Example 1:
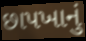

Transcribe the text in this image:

છાપખાનું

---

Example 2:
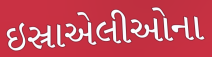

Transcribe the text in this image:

ઇસ્રાએલીઓના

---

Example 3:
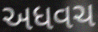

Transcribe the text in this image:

અધવચ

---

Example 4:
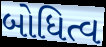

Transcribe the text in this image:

બોધિત્વ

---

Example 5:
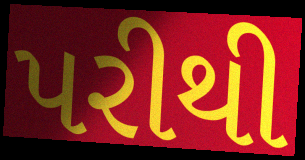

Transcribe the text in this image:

પરીથી